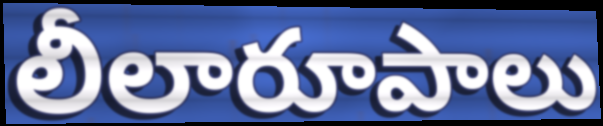
లీలారూపాలు